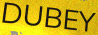
DUBEY